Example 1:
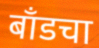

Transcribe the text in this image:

बाँडचा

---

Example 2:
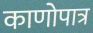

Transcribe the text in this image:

काणोपात्र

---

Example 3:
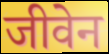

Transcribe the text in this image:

जीवेन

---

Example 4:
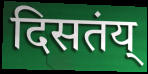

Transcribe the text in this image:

दिसतंय्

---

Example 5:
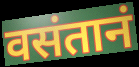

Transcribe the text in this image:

वसंतानं